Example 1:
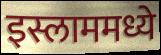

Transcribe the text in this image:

इस्लाममध्ये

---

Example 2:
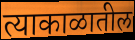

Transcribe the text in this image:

त्याकाळातील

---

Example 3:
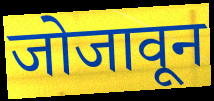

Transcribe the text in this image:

जोजावून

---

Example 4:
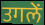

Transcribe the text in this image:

उगलें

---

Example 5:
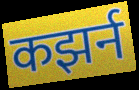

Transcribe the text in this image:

कझर्न